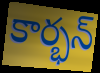
కార్భన్